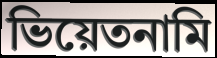
ভিয়েতনামি